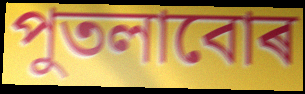
পুতলাবোৰ